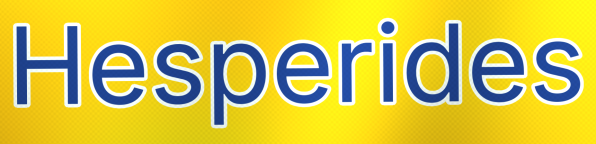
Hesperides